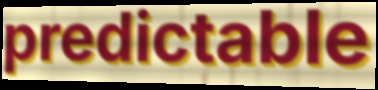
predictable